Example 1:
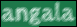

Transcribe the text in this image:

angala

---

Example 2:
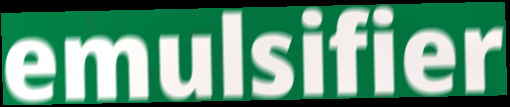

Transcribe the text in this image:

emulsifier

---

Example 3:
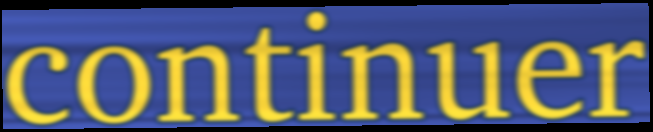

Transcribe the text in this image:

continuer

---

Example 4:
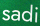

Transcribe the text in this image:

sadi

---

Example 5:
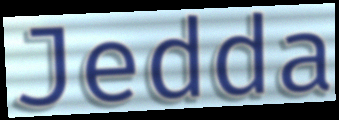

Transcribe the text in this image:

Jedda